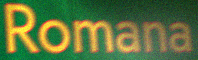
Romana